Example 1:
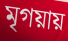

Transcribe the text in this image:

মৃগয়ায়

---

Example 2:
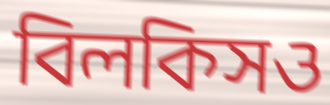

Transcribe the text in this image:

বিলকিসও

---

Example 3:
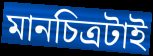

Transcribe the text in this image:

মানচিত্রটাই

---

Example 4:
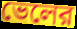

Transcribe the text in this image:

ভেলের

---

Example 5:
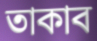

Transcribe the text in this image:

তাকাব